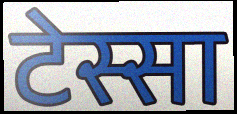
टेस्सा